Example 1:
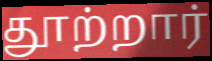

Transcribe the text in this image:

தூற்றார்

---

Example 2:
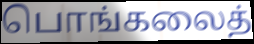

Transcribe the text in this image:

பொங்கலைத்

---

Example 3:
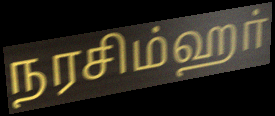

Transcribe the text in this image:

நரசிம்ஹர்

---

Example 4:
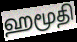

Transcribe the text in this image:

ஹமூதி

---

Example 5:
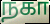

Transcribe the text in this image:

நகா